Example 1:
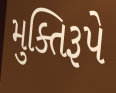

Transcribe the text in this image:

મુક્તિરૂપે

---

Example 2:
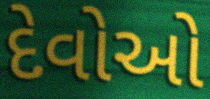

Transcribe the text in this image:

દેવોઓ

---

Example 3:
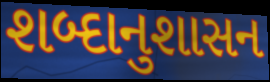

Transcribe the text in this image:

શબ્દાનુશાસન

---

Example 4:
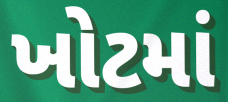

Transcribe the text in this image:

ખોટમાં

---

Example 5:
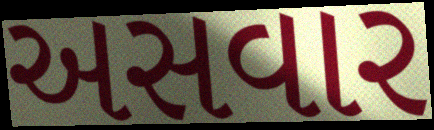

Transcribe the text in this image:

અસવાર